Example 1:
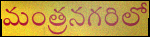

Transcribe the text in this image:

మంత్రనగరిలో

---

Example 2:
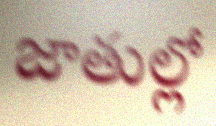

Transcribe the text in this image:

జాతుల్లో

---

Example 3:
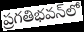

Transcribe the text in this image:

ప్రగతిభవన్‌లో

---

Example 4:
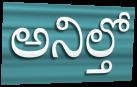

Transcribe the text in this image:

అనిల్తో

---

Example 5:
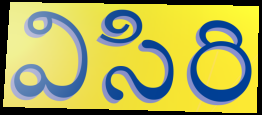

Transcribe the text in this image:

విసిరి